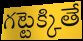
గట్టెక్కితే